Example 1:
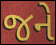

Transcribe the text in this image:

જને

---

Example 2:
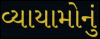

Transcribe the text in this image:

વ્યાયામોનું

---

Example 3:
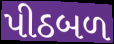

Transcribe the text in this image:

પીઠબળ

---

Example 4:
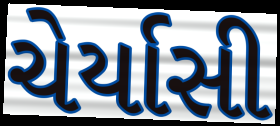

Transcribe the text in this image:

ચેર્યાસી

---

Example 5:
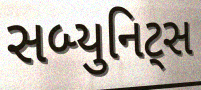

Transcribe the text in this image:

સબ્યુનિટ્સ